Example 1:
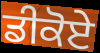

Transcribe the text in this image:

ਡੀਕੋਏ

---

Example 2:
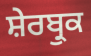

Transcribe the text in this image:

ਸ਼ੇਰਬ੍ਰੁਕ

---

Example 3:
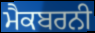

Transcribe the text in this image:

ਮੈਕਬਰਨੀ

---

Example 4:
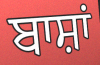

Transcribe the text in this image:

ਬਾਸ਼ਾਂ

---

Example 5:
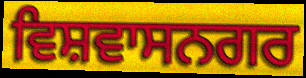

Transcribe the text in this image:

ਵਿਸ਼ਵਾਸਨਗਰ